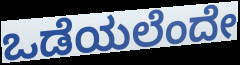
ಒಡೆಯಲೆಂದೇ